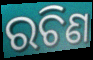
ରଚିଣ